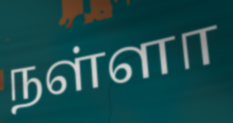
நள்ளா